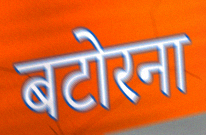
बटोरना